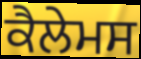
ਕੈਲੇਮਸ